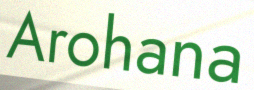
Arohana